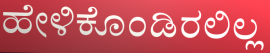
ಹೇಳಿಕೊಂಡಿರಲಿಲ್ಲ